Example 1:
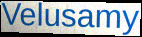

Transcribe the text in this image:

Velusamy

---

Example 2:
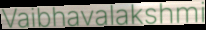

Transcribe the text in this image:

Vaibhavalakshmi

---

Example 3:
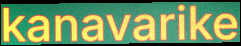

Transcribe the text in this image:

kanavarike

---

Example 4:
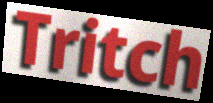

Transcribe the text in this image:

Tritch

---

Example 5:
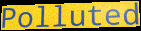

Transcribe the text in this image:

Polluted